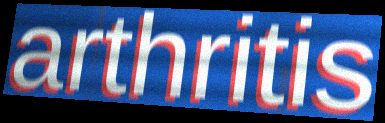
arthritis